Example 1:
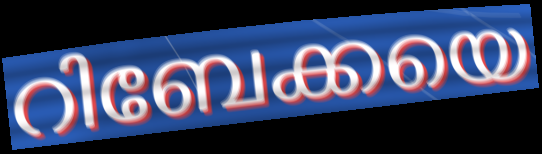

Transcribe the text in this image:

റിബേക്കയെ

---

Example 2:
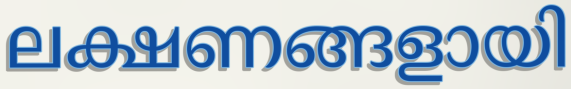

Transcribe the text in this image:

ലക്ഷണങ്ങളായി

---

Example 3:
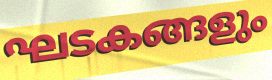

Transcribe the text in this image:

ഘടകങ്ങളും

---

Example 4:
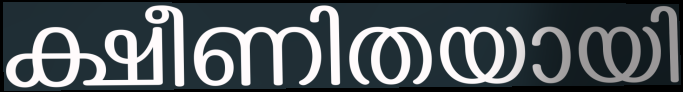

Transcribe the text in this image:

ക്ഷീണിതയായി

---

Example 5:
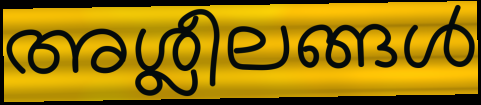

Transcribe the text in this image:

അശ്ലീലങ്ങൾ